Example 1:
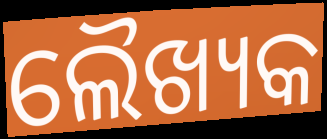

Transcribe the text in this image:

ଲୈଖ୍ୟକ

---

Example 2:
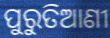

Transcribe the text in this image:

ପୁରୁତିଆଣୀ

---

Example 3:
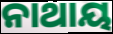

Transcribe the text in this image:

ନାଥାୟ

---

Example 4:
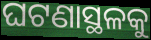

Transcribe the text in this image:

ଘଟଣାସ୍ଥଳକୁ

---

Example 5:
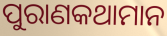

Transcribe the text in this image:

ପୁରାଣକଥାମାନ